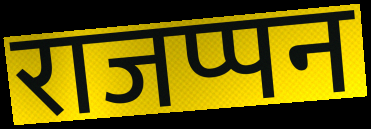
राजप्पन